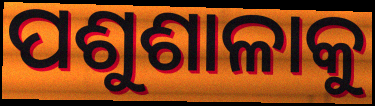
ପଶୁଶାଳାକୁ